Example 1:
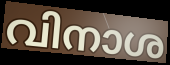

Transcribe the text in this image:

വിനാശ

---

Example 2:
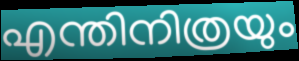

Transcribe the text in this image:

എന്തിനിത്രയും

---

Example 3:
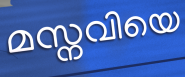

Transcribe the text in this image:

മസ്നവിയെ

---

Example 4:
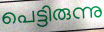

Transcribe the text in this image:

പെട്ടിരുന്നു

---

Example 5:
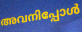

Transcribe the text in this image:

അവനിപ്പോൾ